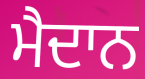
ਮੈਦਾਨ